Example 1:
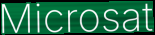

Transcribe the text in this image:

Microsat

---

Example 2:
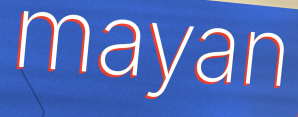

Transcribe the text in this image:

mayan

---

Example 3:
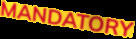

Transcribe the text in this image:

MANDATORY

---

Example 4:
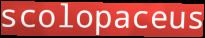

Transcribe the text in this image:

scolopaceus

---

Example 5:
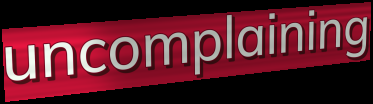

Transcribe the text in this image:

uncomplaining